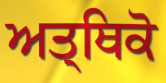
ਅਤ੍ਥਿਕੋ